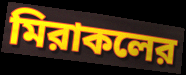
মিরাকলের